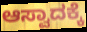
ಆಸ್ವಾದಕ್ಕೆ